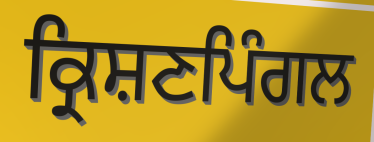
ਕ੍ਰਿਸ਼ਣਪਿੰਗਲ